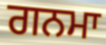
ਗਨਮਾ